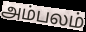
அம்பலம்